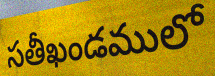
సతీఖండములో